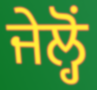
ਜੇਲ੍ਹੋਂ